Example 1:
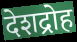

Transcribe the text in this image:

देशद्रोह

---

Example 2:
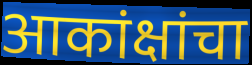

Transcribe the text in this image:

आकांक्षांचा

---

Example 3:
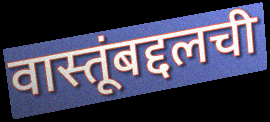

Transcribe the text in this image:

वास्तूंबद्दलची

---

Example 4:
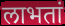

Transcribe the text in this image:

लाभतां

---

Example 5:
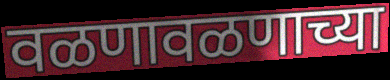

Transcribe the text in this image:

वळणावळणाच्या